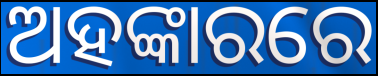
ଅହଙ୍କାରରେ